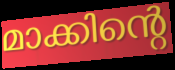
മാക്കിന്റെ